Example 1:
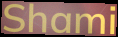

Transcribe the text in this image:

Shami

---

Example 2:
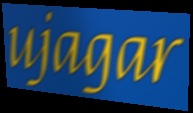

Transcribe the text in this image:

ujagar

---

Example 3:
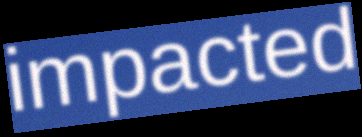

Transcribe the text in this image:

impacted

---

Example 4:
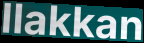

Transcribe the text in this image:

Ilakkan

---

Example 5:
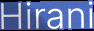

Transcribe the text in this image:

Hirani